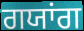
ਗਯਾਂਗ